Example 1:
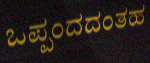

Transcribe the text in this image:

ಒಪ್ಪಂದದಂತಹ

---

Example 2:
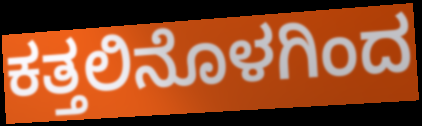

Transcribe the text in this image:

ಕತ್ತಲಿನೊಳಗಿಂದ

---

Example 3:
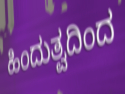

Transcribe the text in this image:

ಹಿಂದುತ್ವದಿಂದ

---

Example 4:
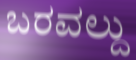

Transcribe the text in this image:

ಬರವಲ್ದು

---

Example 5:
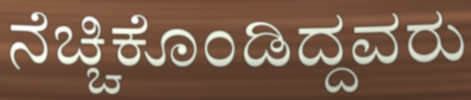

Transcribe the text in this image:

ನೆಚ್ಚಿಕೊಂಡಿದ್ದವರು